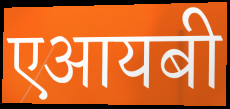
एआयबी